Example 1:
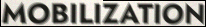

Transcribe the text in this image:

MOBILIZATION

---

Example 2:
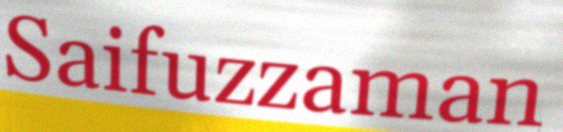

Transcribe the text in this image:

Saifuzzaman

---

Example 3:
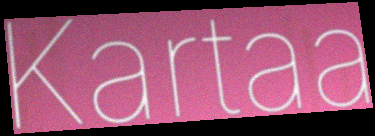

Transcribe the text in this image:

Kartaa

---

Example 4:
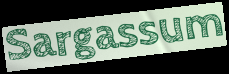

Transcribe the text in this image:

Sargassum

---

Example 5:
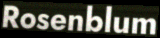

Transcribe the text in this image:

Rosenblum